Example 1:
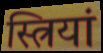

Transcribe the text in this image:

स्त्रियां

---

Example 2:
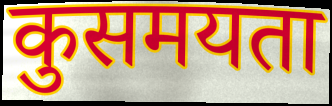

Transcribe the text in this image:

कुसमयता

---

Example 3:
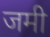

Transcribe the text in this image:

जमी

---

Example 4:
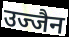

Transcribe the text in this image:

उज्जैन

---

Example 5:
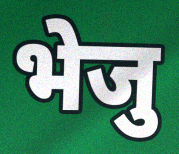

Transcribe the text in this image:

भेजु